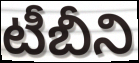
టీబీని